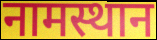
नामस्थान